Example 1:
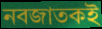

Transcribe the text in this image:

নবজাতকই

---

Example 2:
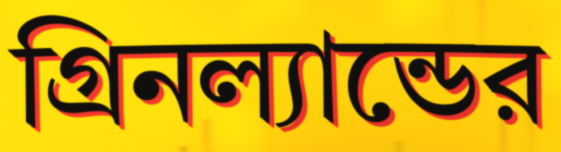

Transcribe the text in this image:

গ্রিনল্যান্ডের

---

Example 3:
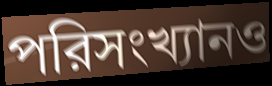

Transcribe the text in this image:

পরিসংখ্যানও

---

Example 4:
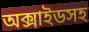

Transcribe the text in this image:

অক্সাইডসহ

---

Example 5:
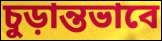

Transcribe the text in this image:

চুড়ান্তভাবে